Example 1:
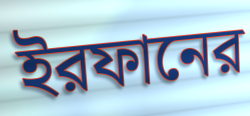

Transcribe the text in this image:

ইরফানের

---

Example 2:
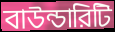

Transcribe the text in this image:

বাউন্ডারিটি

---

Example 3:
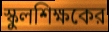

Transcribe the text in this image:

স্কুলশিক্ষকের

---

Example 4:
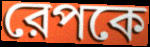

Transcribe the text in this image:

রেপকে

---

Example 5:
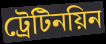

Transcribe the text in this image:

ট্রেটিনয়িন